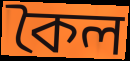
কৈল